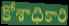
కోశాధికారి